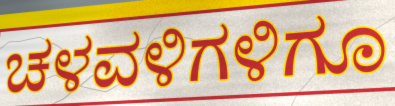
ಚಳವಳಿಗಳಿಗೂ